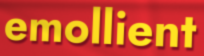
emollient